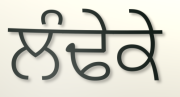
ਲੰਢੇਕੇ